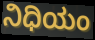
ನಿಧಿಯಂ